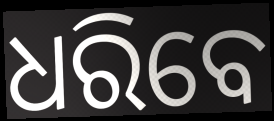
ଧରିବେ